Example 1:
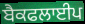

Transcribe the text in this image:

ਬੈਕਫਲਾਈਪ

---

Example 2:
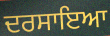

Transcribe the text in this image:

ਦਰਸਾਇਆ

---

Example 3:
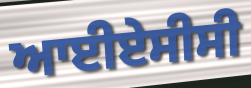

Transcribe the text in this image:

ਆਈਏਸੀਸੀ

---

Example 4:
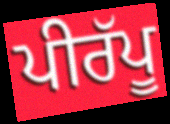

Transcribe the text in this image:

ਪੀਰੱਪੂ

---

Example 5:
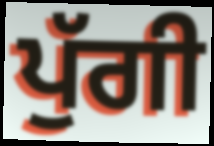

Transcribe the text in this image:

ਪੁੱਗੀ